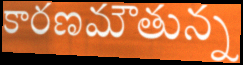
కారణమౌతున్న